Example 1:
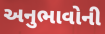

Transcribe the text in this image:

અનુભાવોની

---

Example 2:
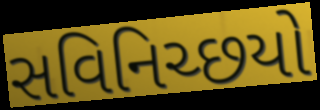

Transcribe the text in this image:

સવિનિચ્છયો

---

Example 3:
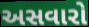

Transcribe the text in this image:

અસવારો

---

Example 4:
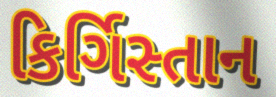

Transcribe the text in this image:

કિર્ગિસ્તાન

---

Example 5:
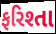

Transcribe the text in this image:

ફરિશ્તા